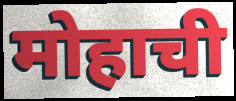
मोहाची